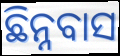
ଛିନ୍ନବାସ